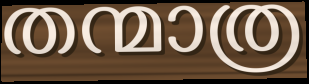
തന്മാത്ര